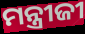
ମନ୍ତ୍ରୀଜୀ